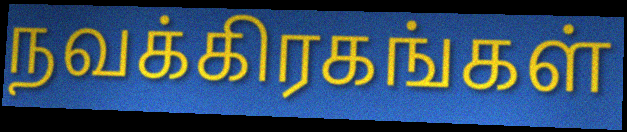
நவக்கிரகங்கள்